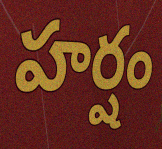
హర్షం